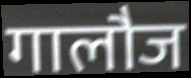
गालौज